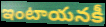
ఇంటాయనకీ